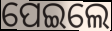
ପେଇଲେ